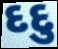
દદુ